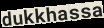
dukkhassa